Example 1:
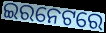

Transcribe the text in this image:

ଇରନେଟରେ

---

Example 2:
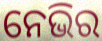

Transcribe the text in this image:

ନେଭିର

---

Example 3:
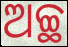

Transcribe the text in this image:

ଅଚ୍ଛ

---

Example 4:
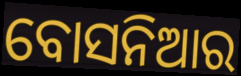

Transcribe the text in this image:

ବୋସନିଆର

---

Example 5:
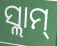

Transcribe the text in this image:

ସ୍ଲାମ୍